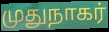
முதுநாகர்